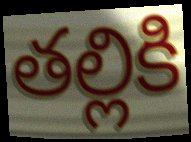
తల్లికి